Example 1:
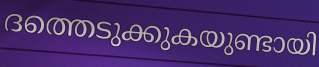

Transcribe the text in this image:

ദത്തെടുക്കുകയുണ്ടായി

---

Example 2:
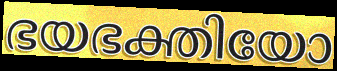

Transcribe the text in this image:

ഭയഭക്തിയോ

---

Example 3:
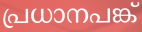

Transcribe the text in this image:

പ്രധാനപങ്ക്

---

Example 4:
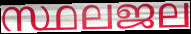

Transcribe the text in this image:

സ്ഥലജല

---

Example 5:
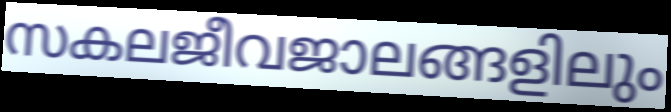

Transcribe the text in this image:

സകലജീവജാലങ്ങളിലും